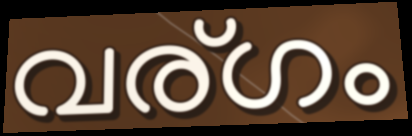
വര്ഗം